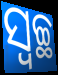
ସ୍ବଚ୍ଛ